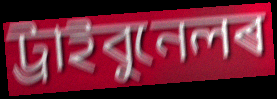
ট্ৰাইবুনেলৰ